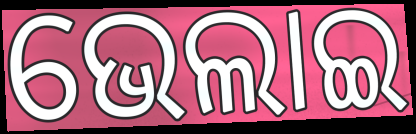
ଭେଲାଇ